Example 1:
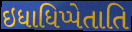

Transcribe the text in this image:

ઇધાધિપ્પેતાતિ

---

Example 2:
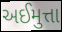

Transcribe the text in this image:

અઈમુત્તા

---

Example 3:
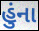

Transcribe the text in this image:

હુંના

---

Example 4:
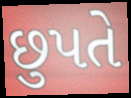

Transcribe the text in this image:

છુપતે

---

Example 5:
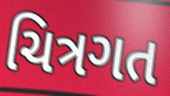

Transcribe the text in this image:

ચિત્રગત